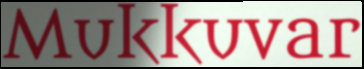
Mukkuvar